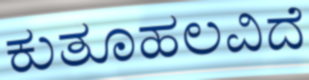
ಕುತೂಹಲವಿದೆ